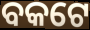
ବକଟେ